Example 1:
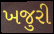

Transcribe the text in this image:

ખજુરી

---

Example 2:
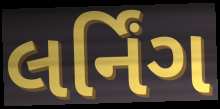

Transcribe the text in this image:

લર્નિંગ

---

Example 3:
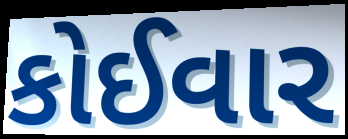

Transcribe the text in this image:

કોઈવાર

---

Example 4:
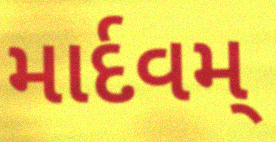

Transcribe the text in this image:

માર્દવમ્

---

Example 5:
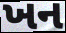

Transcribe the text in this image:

ખન